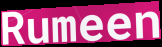
Rumeen